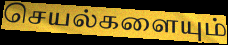
செயல்களையும்